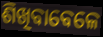
ଶିଖିବାବେଳେ